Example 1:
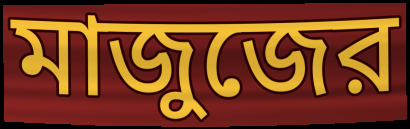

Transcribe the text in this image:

মাজুজের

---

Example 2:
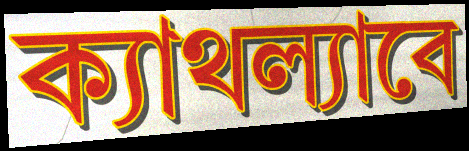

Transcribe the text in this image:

ক্যাথল্যাবে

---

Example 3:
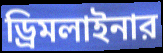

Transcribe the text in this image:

ড্রিমলাইনার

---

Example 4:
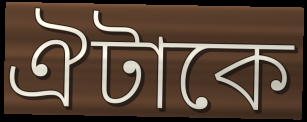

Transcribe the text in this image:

ঐটাকে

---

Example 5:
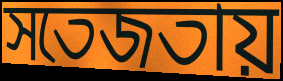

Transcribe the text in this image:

সতেজতায়